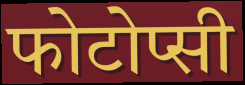
फोटोप्सी